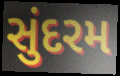
સુંદરમ